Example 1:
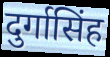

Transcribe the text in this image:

दुर्गासिंह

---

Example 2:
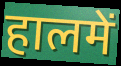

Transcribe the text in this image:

हालमें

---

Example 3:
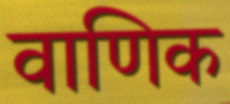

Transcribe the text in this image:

वाणिक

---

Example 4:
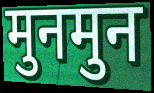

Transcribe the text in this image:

मुनमुन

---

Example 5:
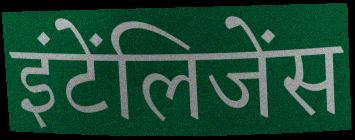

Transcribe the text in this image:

इंटेंलिजेंस